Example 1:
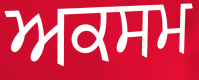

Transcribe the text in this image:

ਅਕਸਮ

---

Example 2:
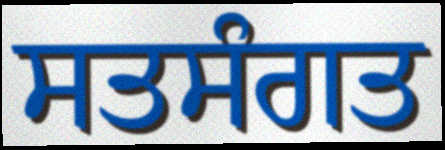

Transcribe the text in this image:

ਸਤਸੰਗਤ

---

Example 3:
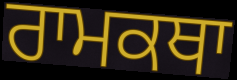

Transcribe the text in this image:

ਰਾਮਕਥਾ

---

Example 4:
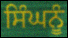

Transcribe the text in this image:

ਸਿੰਘਨੂੰ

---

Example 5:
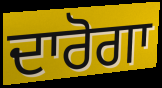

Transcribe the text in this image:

ਦਾਰੋਗਾ